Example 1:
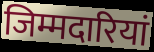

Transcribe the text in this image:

जिम्मदारियां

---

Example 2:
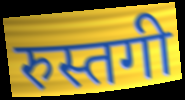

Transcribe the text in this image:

रुस्तगी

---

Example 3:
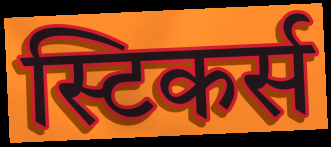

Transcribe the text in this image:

स्टिकर्स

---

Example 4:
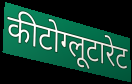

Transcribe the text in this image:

कीटोग्लूटारेट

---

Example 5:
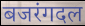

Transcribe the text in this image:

बजरंगदल